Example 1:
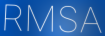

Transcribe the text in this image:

RMSA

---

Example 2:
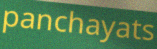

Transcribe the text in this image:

panchayats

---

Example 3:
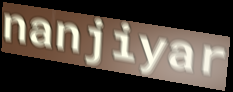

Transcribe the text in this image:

nanjiyar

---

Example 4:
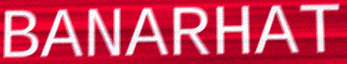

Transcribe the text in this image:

BANARHAT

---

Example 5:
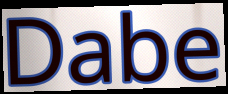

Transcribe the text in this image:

Dabe